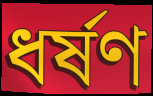
ধৰ্ষণ